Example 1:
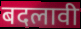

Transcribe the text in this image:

बदलावी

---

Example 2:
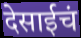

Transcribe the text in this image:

देसाईचं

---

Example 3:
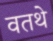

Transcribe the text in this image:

वतथे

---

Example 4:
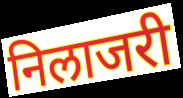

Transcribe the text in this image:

निलाजरी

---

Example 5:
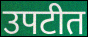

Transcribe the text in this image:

उपटीत